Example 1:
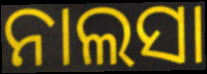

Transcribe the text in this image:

ନାଲସା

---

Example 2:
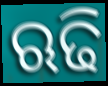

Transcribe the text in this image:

ଋଢି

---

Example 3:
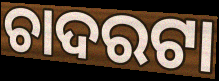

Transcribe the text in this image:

ଚାଦରଟା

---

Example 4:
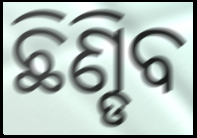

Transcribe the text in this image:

ଛିଣ୍ଡିବ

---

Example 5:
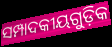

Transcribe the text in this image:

ସମ୍ପାଦକୀୟଗୁଡ଼ିକ